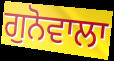
ਗੁਨੋਵਾਲਾ